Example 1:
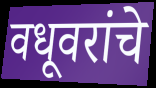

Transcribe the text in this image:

वधूवरांचे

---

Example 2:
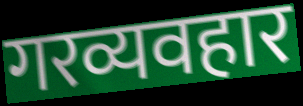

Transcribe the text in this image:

गरव्यवहार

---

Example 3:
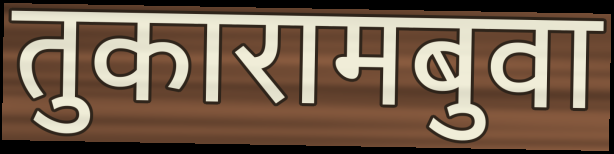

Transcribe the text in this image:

तुकारामबुवा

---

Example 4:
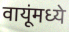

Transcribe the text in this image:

वायूंमध्ये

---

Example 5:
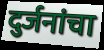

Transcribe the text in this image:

दुर्जनांचा